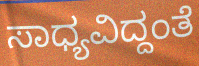
ಸಾಧ್ಯವಿದ್ದಂತೆ